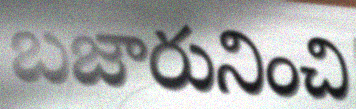
బజారునించి